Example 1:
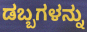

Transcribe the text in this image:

ಡಬ್ಬಗಳನ್ನು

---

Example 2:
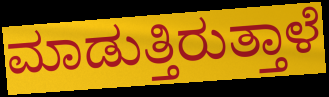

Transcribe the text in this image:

ಮಾಡುತ್ತಿರುತ್ತಾಳೆ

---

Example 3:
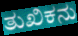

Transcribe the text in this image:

ತುಖಿಕನು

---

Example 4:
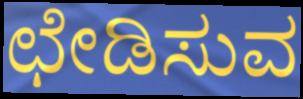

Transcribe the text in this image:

ಛೇಡಿಸುವ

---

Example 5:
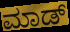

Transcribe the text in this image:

ಮಾಡ್